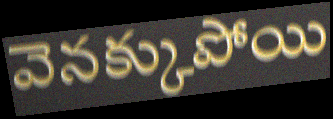
వెనక్కుపోయి